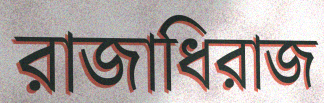
রাজাধিরাজ